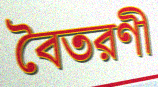
বৈতরণী